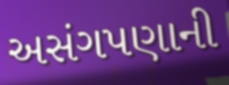
અસંગપણાની